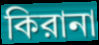
কিরানা